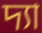
দ্যা